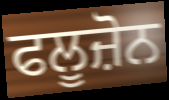
ਫਲੂਜ਼ੋਨ